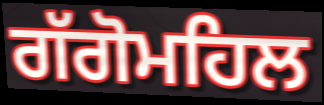
ਗੱਗੋਮਹਿਲ